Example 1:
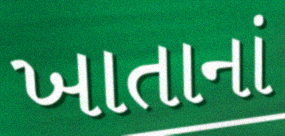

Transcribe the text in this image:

ખાતાનાં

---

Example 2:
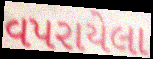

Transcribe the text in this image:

વપરાયેલા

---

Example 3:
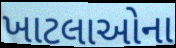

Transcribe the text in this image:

ખાટલાઓના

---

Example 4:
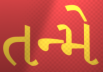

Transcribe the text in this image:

તન્મે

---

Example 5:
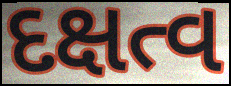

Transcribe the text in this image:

દક્ષત્વ